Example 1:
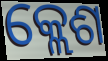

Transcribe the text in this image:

କ୍ଲେଶ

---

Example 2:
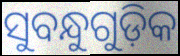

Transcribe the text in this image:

ସୁବନ୍ଧୁଗୁଡ଼ିକ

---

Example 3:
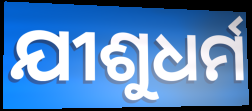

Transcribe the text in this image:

ଯୀଶୁଧର୍ମ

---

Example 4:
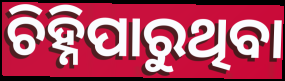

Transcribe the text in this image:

ଚିହ୍ନିପାରୁଥିବା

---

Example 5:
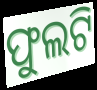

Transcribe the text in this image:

ଫୁଲଟି